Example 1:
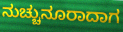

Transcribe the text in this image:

ನುಚ್ಚುನೂರಾದಾಗ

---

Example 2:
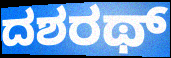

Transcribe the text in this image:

ದಶರಥ್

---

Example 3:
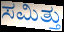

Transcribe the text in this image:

ಸಮಿತ್ತು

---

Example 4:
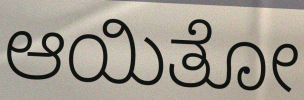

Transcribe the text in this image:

ಆಯಿತೋ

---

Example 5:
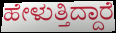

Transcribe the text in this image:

ಹೇಳುತ್ತಿದ್ದಾರೆ